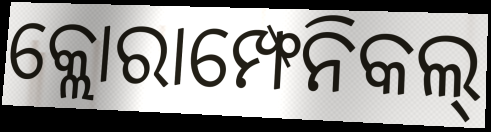
କ୍ଲୋରାମ୍ଫେନିକଲ୍